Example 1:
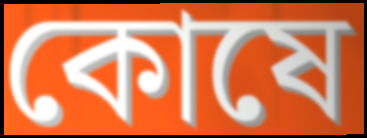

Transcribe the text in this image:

কোষে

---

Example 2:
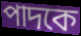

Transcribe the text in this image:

পাদকে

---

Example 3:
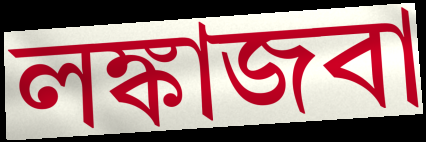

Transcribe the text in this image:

লঙ্কাজবা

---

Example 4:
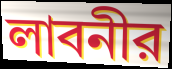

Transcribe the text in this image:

লাবনীর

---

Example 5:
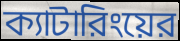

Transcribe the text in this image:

ক্যাটারিংয়ের